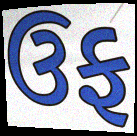
ઉફ